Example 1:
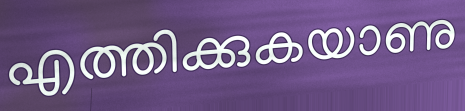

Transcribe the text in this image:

എത്തിക്കുകയാണു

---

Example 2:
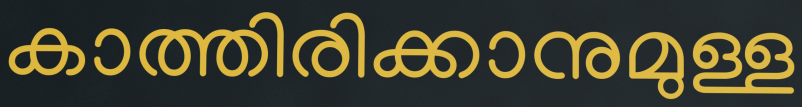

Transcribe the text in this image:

കാത്തിരിക്കാനുമുള്ള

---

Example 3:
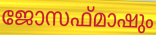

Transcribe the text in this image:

ജോസഫ്മാഷും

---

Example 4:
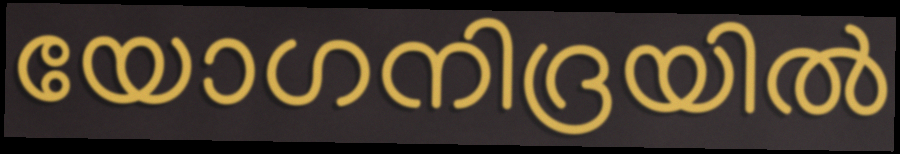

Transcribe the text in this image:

യോഗനിദ്രയിൽ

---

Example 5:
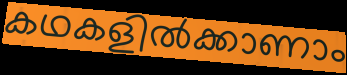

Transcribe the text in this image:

കഥകളിൽക്കാണാം